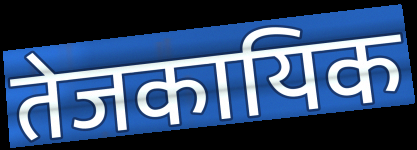
तेजकायिक